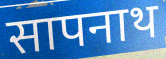
सापनाथ